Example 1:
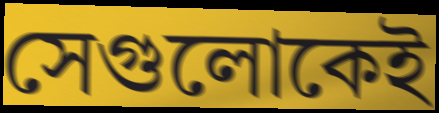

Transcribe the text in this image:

সেগুলোকেই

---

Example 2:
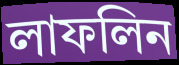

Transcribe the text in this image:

লাফলিন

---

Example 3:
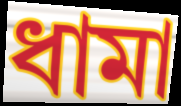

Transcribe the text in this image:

ধামা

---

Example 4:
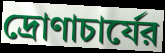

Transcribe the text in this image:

দ্রোণাচার্যের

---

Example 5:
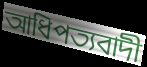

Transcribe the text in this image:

আধিপত্যবাদী